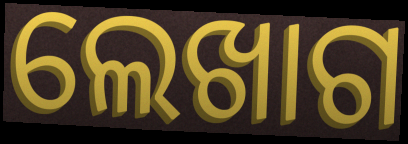
ଲେଖାଗ